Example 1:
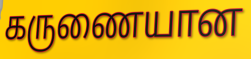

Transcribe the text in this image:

கருணையான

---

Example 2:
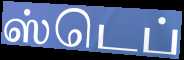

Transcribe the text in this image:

ஸ்டெப்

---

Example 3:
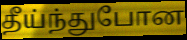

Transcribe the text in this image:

தீய்ந்துபோன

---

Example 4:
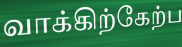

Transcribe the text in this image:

வாக்கிற்கேற்ப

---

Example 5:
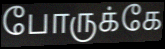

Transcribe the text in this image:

போருக்கே